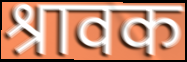
श्रावक